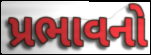
પ્રભાવનો